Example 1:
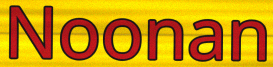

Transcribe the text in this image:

Noonan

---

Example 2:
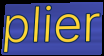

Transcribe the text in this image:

plier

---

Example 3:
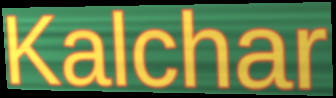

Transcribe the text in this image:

Kalchar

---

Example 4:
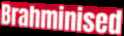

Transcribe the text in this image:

Brahminised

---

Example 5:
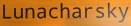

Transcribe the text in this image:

Lunacharsky